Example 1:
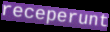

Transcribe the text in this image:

receperunt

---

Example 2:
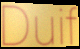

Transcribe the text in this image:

Duif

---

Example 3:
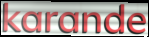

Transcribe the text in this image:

karande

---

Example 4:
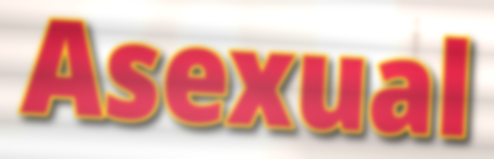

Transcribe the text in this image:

Asexual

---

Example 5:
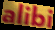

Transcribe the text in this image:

alibi